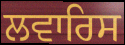
ਲਵਾਰਿਸ